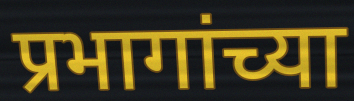
प्रभागांच्या